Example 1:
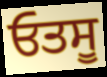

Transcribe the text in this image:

ਓਤਸੂ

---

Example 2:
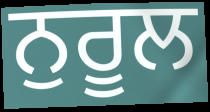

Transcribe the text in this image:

ਨੁਰੂਲ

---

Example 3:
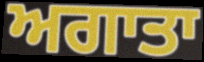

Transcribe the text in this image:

ਅਗਾਤਾ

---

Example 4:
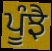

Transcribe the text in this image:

ਪੂੰਝੈ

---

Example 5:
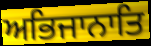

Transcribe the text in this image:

ਅਭਿਜਾਨਾਤਿ